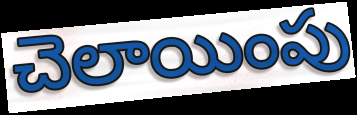
చెలాయింపు